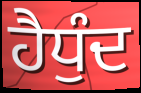
ਹੈਧੁੰਦ